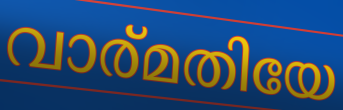
വാര്മതിയേ